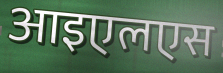
आइएलएस